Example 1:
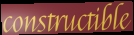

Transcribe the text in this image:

constructible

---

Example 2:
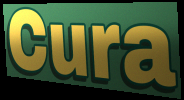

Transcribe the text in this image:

Cura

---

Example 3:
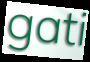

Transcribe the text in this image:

gati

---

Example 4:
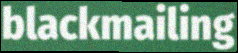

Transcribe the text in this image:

blackmailing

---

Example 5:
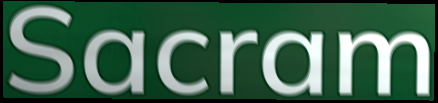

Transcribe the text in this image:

Sacram